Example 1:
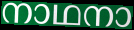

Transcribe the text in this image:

നാഥനാ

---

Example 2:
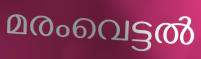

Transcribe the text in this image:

മരംവെട്ടൽ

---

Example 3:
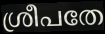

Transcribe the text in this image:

ശ്രീപതേ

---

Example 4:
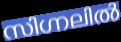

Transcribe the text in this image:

സിഗ്നലിൽ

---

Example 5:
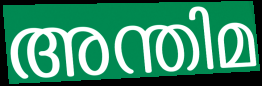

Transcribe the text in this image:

അന്തിമ